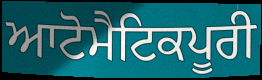
ਆਟੋਮੈਟਿਕਪੂਰੀ